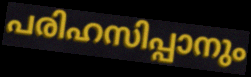
പരിഹസിപ്പാനും